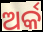
ଅର୍କ